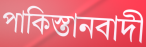
পাকিস্তানবাদী